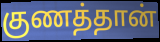
குணத்தான்